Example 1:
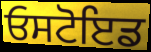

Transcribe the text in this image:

ਓਸਟੋਇਡ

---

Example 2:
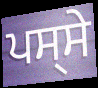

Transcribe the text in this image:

ਪਸ੍ਸੇ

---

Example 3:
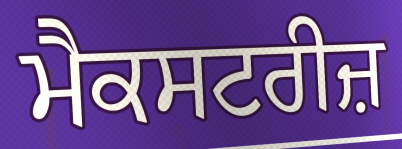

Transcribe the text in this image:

ਮੈਕਸਟਰੀਜ਼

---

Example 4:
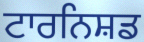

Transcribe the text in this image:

ਟਾਰਨਿਸ਼ਡ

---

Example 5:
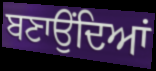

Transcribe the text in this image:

ਬਣਾਉਂਦਿਆਂ